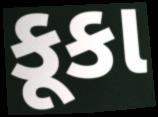
કૂકા